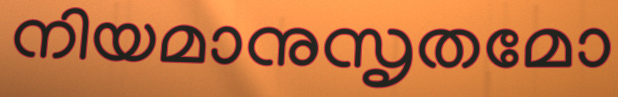
നിയമാനുസൃതമോ